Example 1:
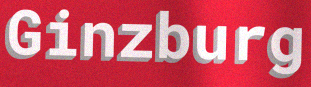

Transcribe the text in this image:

Ginzburg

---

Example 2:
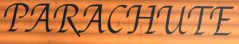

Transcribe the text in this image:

PARACHUTE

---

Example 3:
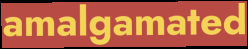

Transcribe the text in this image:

amalgamated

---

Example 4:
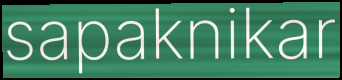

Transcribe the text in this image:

sapaknikar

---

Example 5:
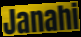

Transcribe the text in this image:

Janahi